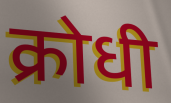
क्रोधी